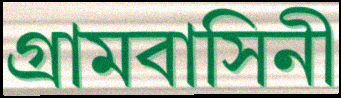
গ্রামবাসিনী